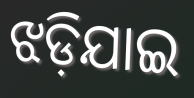
ଝଡ଼ିଯାଇ